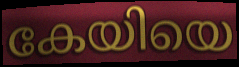
കേയിയെ